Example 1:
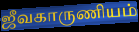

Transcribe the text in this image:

ஜீவகாருணியம்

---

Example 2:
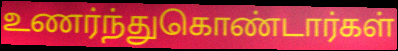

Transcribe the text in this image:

உணர்ந்துகொண்டார்கள்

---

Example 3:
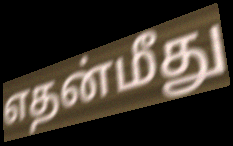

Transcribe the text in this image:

எதன்மீது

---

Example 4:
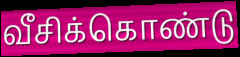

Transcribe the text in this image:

வீசிக்கொண்டு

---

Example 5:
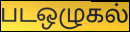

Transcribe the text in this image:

படஒழுகல்